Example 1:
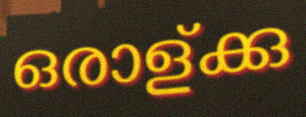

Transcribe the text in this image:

ഒരാള്ക്കു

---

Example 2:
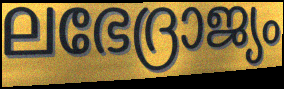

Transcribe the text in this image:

ലഭേദ്രാജ്യം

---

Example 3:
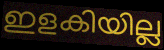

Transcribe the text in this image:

ഇളകിയില്ല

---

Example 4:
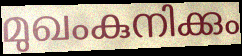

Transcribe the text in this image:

മുഖംകുനിക്കും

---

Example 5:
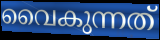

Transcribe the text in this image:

വൈകുന്നത്